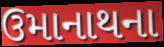
ઉમાનાથના